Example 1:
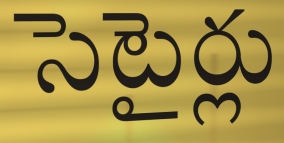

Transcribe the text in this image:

సెటైర్లు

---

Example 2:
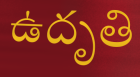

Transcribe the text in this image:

ఉదృతి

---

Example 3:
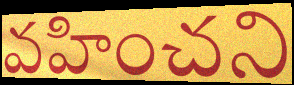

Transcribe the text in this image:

వహించని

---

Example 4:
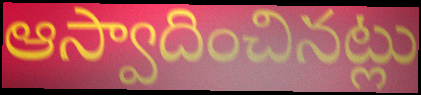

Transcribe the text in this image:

ఆస్వాదించినట్లు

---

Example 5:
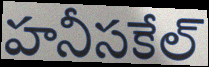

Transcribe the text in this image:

హనీసకేల్